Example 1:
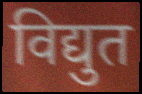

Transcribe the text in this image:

विद्युत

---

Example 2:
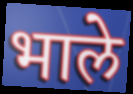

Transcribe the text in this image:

भाले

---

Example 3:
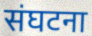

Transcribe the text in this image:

संघटना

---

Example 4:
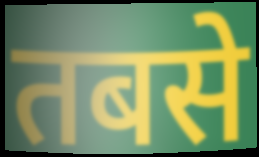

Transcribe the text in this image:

तबसे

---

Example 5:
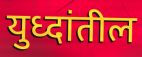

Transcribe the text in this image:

युध्दांतील